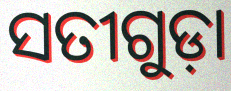
ସତୀଗୁଡ଼ା